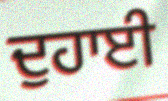
ਦੁਹਾਈ